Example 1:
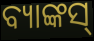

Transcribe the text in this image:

ବ୍ୟାଙ୍କସ୍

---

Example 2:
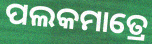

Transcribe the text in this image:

ପଲକମାତ୍ରେ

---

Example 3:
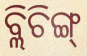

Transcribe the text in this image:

ବ୍ଲିଚିଙ୍ଗ୍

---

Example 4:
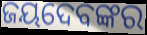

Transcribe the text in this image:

ଜୟଦେବଙ୍କର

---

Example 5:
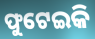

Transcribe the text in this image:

ଫୁଟେଇକି